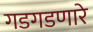
गडगडणारे